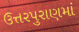
ઉત્તરપુરાણમાં